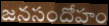
జనసందోహం